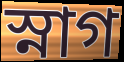
স্নাগ